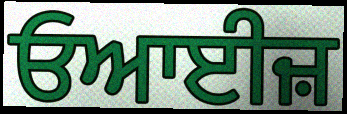
ਓਆਈਜ਼